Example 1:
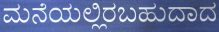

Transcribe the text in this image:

ಮನೆಯಲ್ಲಿರಬಹುದಾದ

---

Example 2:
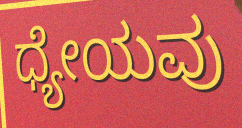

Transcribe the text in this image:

ಧ್ಯೇಯವು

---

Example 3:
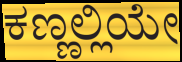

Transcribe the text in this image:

ಕಣ್ಣಲ್ಲಿಯೇ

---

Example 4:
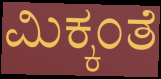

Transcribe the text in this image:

ಮಿಕ್ಕಂತೆ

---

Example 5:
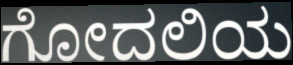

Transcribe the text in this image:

ಗೋದಲಿಯ